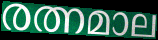
രത്നമാല